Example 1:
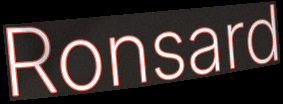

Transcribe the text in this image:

Ronsard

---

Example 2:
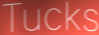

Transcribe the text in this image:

Tucks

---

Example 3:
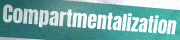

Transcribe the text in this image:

Compartmentalization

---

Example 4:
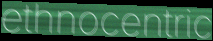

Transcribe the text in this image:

ethnocentric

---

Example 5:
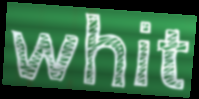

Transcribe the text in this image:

whit